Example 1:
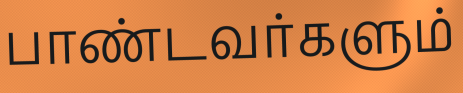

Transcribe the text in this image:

பாண்டவர்களும்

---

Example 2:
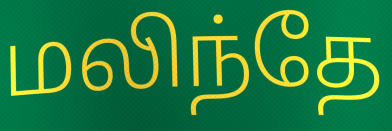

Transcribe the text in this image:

மலிந்தே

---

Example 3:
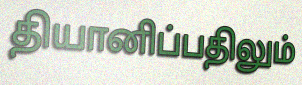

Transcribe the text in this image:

தியானிப்பதிலும்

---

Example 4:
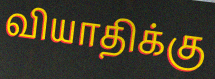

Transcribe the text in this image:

வியாதிக்கு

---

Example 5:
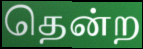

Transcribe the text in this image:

தென்ற